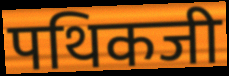
पथिकजी